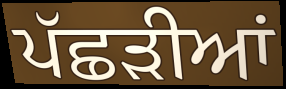
ਪੱਛੜੀਆਂ